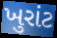
ખુરાંટ